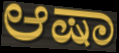
ಆಷಾ